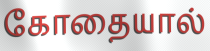
கோதையால்